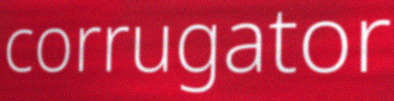
corrugator